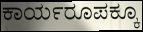
ಕಾರ್ಯರೂಪಕ್ಕೂ